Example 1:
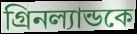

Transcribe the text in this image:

গ্রিনল্যান্ডকে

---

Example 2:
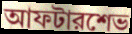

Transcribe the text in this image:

আফটারশেভ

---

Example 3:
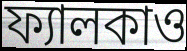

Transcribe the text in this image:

ফ্যালকাও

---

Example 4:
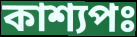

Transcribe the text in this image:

কাশ্যপঃ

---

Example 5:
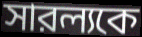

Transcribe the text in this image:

সারল্যকে